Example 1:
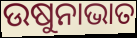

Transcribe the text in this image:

ଉଷୁନାଭାତ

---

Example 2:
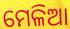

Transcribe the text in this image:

ମେଳିଆ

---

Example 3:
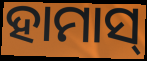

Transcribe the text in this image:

ହାମାସ୍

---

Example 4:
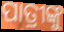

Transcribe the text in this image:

ପାତ୍ରୀଙ୍କୁ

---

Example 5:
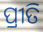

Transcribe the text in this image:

ପ୍ରୀତି